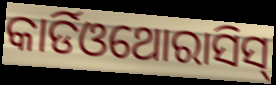
କାର୍ଡିଓଥୋରାସିସ୍